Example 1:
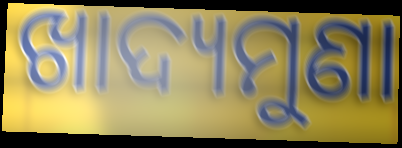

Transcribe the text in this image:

ଖାଦ୍ୟମୁଣା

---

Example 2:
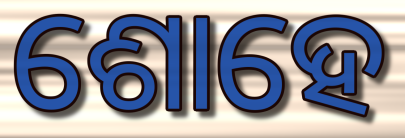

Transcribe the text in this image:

ଶୋହେ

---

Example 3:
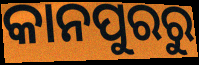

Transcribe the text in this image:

କାନପୁରରୁ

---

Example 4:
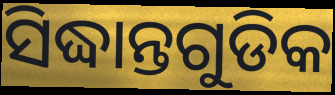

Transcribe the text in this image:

ସିଦ୍ଧାନ୍ତଗୁଡିକ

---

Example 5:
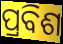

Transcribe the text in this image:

ପ୍ରବିଶ